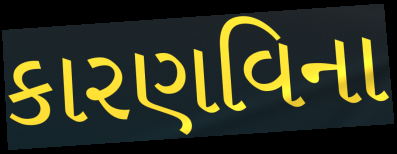
કારણવિના